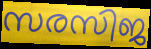
സരസിജ